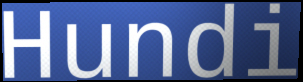
Hundi